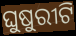
ଘୁଷୁରୀଟି